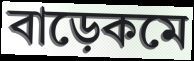
বাড়েকমে